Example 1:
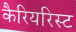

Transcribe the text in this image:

कैरियरिस्ट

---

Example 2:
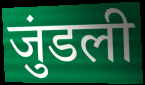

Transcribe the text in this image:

जुंडली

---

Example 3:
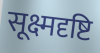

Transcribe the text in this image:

सूक्ष्मदृष्टि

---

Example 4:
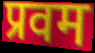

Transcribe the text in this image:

प्रवम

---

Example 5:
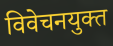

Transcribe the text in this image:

विवेचनयुक्त